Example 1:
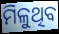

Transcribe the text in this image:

ମିଳୁଥିବ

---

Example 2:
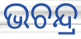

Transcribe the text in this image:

ଭଚନ୍ଦ୍ର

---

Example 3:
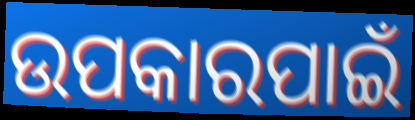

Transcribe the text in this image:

ଉପକାରପାଇଁ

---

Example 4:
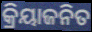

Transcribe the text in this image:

କ୍ରିୟାଜନିତ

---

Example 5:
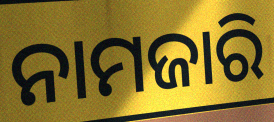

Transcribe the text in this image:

ନାମଜାରି